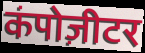
कंपोज़ीटर